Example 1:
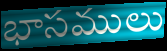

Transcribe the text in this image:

భాసములు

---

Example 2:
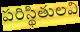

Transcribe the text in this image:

పరిస్థితులవి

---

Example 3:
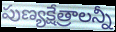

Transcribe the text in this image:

పుణ్యక్షేత్రాలన్నీ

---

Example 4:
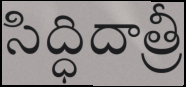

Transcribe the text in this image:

సిద్ధిదాత్రీ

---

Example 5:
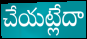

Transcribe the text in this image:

చేయట్లేదా